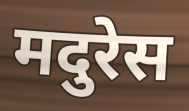
मदुरेस